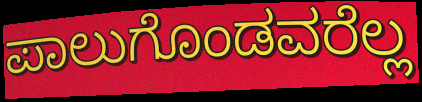
ಪಾಲುಗೊಂಡವರೆಲ್ಲ